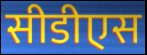
सीडीएस